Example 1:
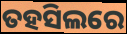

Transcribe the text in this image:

ତହସିଲରେ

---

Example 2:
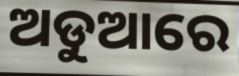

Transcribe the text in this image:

ଅଡୁଆରେ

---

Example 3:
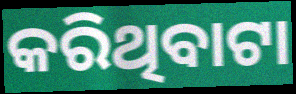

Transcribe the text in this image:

କରିଥିବାଟା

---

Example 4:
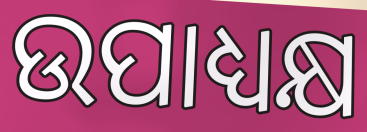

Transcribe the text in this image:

ଉପାଧ୍ୟକ୍ଷ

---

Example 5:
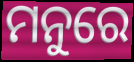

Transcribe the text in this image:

ମନୁରେ